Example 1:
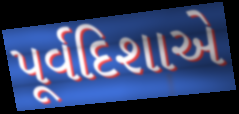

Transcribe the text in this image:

પૂર્વદિશાએ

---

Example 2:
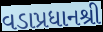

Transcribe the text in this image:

વડાપ્રધાનશ્રી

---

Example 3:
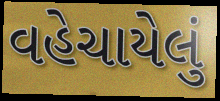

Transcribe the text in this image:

વહેચાયેલું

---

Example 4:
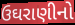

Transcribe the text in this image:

ઉઘરાણીનો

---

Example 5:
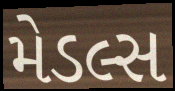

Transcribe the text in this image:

મેડલ્સ